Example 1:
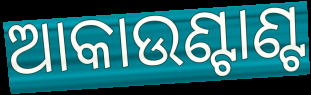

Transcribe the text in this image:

ଆକାଉଣ୍ଟାଣ୍ଟ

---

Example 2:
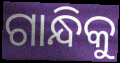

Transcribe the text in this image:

ଗାନ୍ଧିକୁ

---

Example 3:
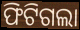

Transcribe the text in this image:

ଫିଟିଗଲା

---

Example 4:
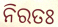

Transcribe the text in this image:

ନିରତଃ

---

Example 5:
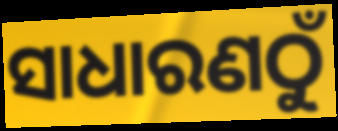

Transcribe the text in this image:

ସାଧାରଣଠୁଁ